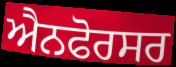
ਐਨਫੋਰਸਰ